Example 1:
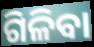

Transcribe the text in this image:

ଗିଳିବା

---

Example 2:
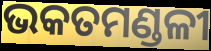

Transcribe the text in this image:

ଭକତମଣ୍ଡଳୀ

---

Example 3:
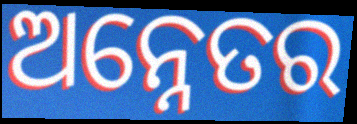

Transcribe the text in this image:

ଅନ୍ନେତର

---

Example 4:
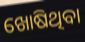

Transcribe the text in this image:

ଖୋଷିଥିବା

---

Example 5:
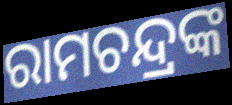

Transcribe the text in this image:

ରାମଚନ୍ଦ୍ରଙ୍କ